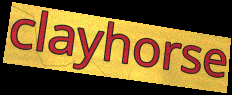
clayhorse